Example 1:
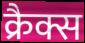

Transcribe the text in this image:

क्रैक्स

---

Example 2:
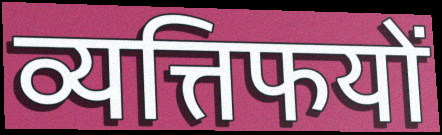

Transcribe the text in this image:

व्यत्तिफयों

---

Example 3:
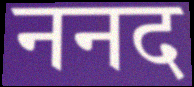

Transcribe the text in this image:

ननद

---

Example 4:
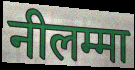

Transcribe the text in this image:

नीलम्मा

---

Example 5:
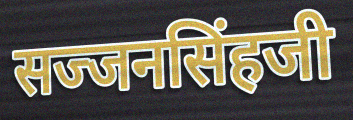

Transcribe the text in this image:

सज्जनसिंहजी